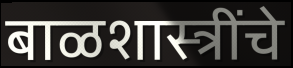
बाळशास्त्रींचे